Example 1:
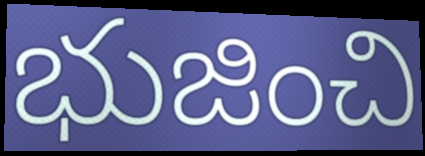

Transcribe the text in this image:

భుజించి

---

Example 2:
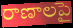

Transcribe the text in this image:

రాణాలపై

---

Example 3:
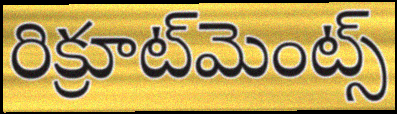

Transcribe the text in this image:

రిక్రూట్‌మెంట్స్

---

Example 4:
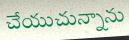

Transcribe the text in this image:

చేయుచున్నాను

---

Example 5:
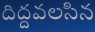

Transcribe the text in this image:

దిద్దవలసిన